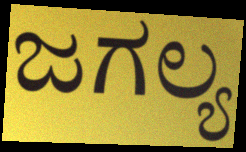
ಜಗಲ್ಯ